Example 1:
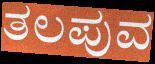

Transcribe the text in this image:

ತಲಪುವ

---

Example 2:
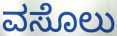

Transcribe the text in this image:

ವಸೊಲು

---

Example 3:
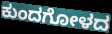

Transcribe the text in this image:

ಕುಂದಗೋಳದ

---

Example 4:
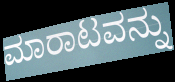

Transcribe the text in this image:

ಮಾರಾಟವನ್ನು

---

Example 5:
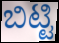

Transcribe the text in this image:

ಬಿಟ್ಟಿ